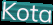
Kota